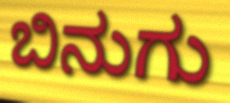
ಬಿನುಗು